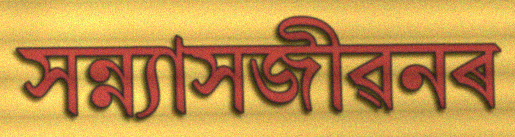
সন্ন্যাসজীৱনৰ